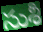
సుశీ